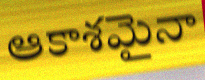
ఆకాశమైనా